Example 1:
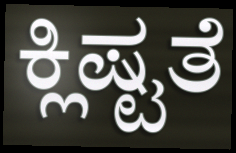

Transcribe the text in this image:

ಕ್ಲಿಷ್ಟತೆ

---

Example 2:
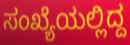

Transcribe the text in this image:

ಸಂಖ್ಯೆಯಲ್ಲಿದ್ದ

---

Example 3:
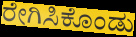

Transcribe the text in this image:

ರೇಗಿಸಿಕೊಂಡು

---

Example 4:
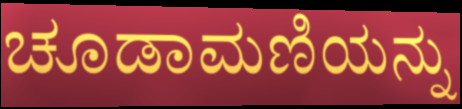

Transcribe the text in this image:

ಚೂಡಾಮಣಿಯನ್ನು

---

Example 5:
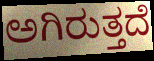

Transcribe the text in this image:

ಅಗಿರುತ್ತದೆ